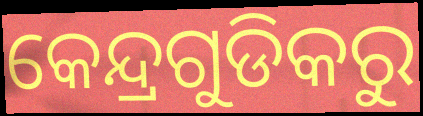
କେନ୍ଦ୍ରଗୁଡିକରୁ